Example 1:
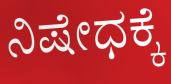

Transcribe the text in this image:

ನಿಷೇಧಕ್ಕೆ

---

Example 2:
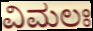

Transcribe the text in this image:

ವಿಮಲಃ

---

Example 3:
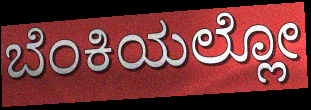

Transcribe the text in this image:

ಬೆಂಕಿಯಲ್ಲೋ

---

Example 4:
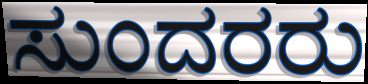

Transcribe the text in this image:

ಸುಂದರರು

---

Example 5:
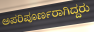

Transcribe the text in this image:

ಅಪರಿಪೂರ್ಣರಾಗಿದ್ದರು